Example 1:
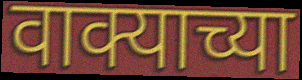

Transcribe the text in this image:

वाक्याच्या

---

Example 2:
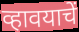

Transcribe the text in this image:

व्हावयाचें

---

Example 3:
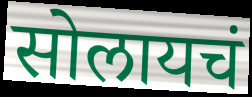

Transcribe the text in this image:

सोलायचं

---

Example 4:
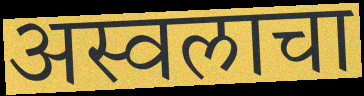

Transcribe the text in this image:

अस्वलाचा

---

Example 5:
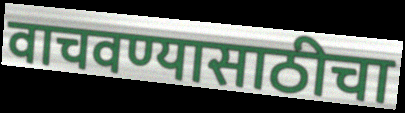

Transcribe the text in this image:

वाचवण्यासाठीचा